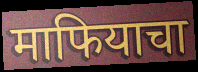
माफियाचा